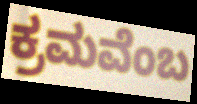
ಕ್ರಮವೆಂಬ